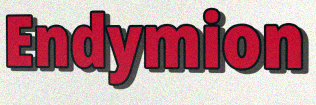
Endymion